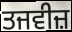
ਤਜਵੀਜ਼